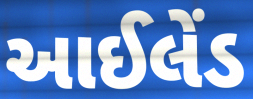
આઈલેંડ